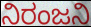
ನಿರಂಜನಿ